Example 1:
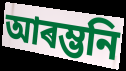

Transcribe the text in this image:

আৰম্ভনি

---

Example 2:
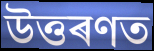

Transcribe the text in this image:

উত্তৰণত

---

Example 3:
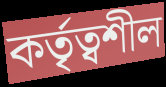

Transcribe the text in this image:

কৰ্তৃত্বশীল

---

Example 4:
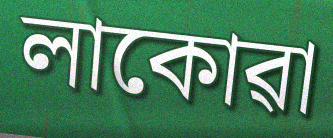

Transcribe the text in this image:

লাকোৱা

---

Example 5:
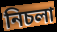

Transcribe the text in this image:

নিচলা